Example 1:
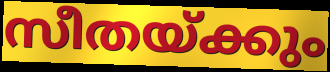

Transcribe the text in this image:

സീതയ്ക്കും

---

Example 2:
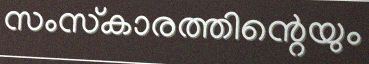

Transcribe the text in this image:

സംസ്‌കാരത്തിന്റെയും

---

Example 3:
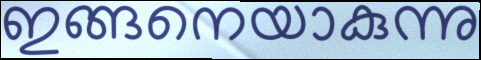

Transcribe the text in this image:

ഇങ്ങനെയാകുന്നു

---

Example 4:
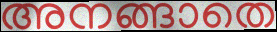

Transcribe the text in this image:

അനങ്ങാതെ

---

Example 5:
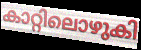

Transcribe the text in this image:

കാറ്റിലൊഴുകി